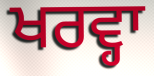
ਖਰਵ੍ਹਾ